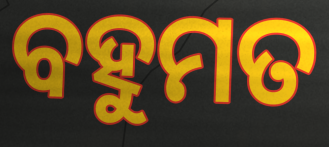
ବହୁମତ